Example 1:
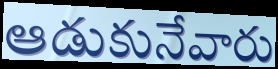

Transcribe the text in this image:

ఆడుకునేవారు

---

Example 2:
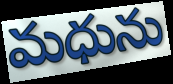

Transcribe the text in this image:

మధును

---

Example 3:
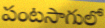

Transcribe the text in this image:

పంటసాగులో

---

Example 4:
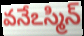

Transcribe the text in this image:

వనేఽస్మిన్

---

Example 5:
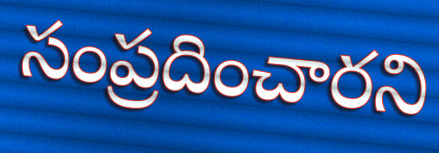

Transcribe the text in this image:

సంప్రదించారని